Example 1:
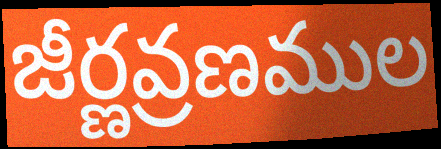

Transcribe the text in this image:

జీర్ణవ్రణముల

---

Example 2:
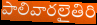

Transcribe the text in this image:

పాలివారలైతిరి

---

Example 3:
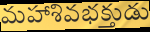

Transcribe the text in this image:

మహాశివభక్తుడు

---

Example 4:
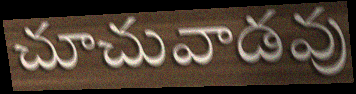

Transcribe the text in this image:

చూచువాడవు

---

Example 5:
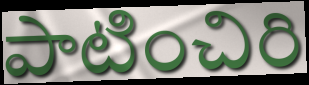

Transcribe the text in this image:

పాటించిరి